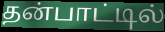
தன்பாட்டில்